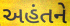
અહંતને